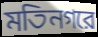
মতিনগরে